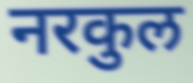
नरकुल